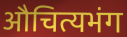
औचित्यभंग